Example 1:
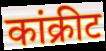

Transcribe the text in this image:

कांक्रीट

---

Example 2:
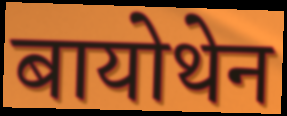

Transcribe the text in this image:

बायोथेन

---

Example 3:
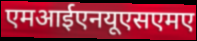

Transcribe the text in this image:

एमआईएनयूएसएमए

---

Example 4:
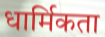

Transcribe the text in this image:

धार्मिकता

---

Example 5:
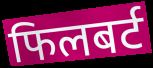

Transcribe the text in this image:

फिलबर्ट